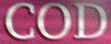
COD